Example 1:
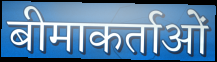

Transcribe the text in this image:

बीमाकर्ताओं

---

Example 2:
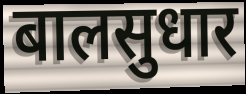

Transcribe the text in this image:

बालसुधार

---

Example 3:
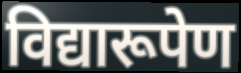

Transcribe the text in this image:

विद्यारूपेण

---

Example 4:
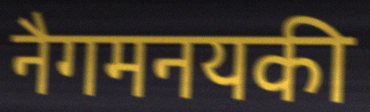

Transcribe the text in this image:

नैगमनयकी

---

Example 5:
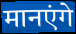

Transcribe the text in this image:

मानएंगे